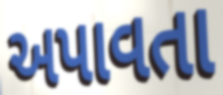
અપાવતા